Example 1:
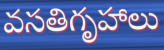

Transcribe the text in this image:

వసతిగృహాలు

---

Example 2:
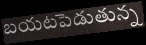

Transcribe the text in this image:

బయటపెడుతున్న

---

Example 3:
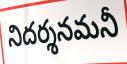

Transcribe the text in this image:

నిదర్శనమనీ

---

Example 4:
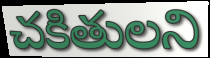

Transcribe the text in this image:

చకితులని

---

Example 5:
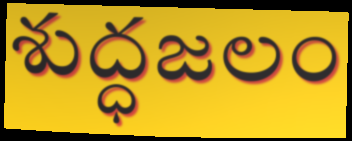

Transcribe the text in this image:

శుద్ధజలం